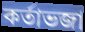
কর্তাভজা